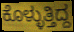
ಕೊಳ್ಳುತ್ತಿದ್ದ